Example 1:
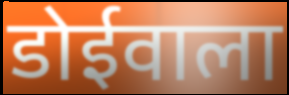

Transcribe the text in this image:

डोईवाला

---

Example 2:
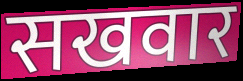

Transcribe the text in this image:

सखवार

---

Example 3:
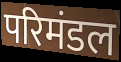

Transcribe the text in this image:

परिमंडल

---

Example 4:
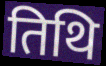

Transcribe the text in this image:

तिथि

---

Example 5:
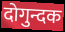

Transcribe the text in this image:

दोगुन्दक